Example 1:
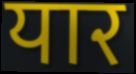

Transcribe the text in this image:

यार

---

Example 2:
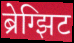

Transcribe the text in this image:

ब्रेग्झिट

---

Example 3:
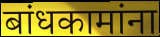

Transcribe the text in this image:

बांधकामांना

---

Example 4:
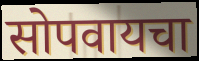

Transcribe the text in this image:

सोपवायचा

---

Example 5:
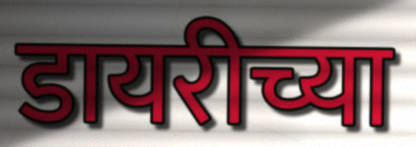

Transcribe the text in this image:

डायरीच्या